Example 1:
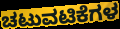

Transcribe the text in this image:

ಚಟುವಟಿಕೆಗಳ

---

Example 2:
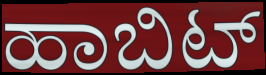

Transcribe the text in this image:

ಹಾಬಿಟ್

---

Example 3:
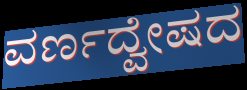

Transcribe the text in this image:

ವರ್ಣದ್ವೇಷದ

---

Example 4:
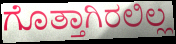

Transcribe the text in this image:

ಗೊತ್ತಾಗಿರಲಿಲ್ಲ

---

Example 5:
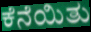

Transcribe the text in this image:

ಕೆನೆಯಿತು